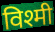
विश्मी